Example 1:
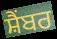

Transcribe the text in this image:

ਸ਼ੈਂਬਰ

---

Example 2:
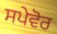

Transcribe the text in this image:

ਸਪੇਵੋਰ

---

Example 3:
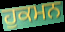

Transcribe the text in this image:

ਹੁਕਮਨ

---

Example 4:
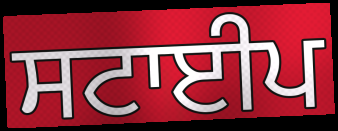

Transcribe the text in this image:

ਸਟਾਈਪ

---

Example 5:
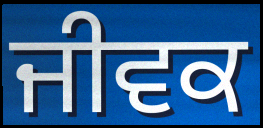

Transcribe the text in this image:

ਜੀਵਕ